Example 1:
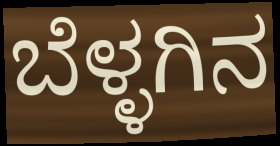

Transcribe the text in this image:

ಬೆಳ್ಳಗಿನ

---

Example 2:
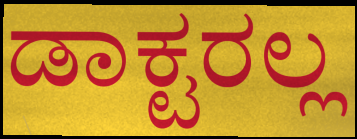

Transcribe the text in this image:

ಡಾಕ್ಟರಲ್ಲ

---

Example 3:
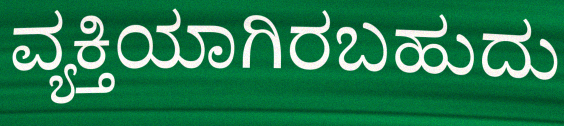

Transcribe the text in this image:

ವ್ಯಕ್ತಿಯಾಗಿರಬಹುದು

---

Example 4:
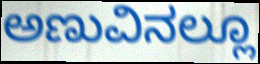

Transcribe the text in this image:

ಅಣುವಿನಲ್ಲೂ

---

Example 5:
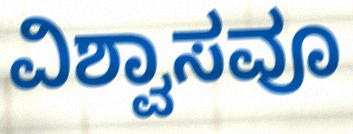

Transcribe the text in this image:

ವಿಶ್ವಾಸವೂ